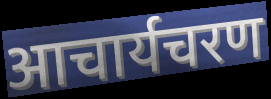
आचार्यचरण